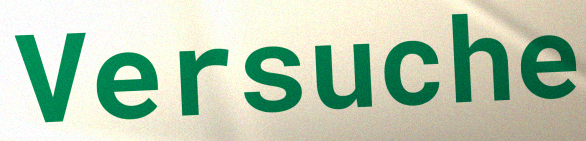
Versuche